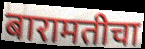
बारामतीचा